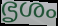
ഭൃശം